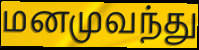
மனமுவந்து